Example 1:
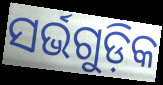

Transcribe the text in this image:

ସର୍ଭଗୁଡ଼ିକ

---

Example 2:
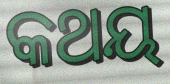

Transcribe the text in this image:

କଥୟ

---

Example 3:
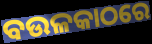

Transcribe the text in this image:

ବଉଳକାଠରେ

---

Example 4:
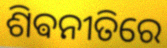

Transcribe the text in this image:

ଶିଵନୀତିରେ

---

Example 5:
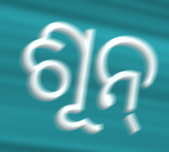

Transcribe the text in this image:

ଶୂନ୍